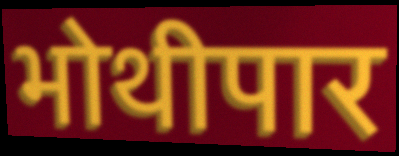
भोथीपार